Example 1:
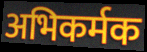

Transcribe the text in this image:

अभिकर्मक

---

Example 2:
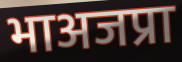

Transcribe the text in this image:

भाअजप्रा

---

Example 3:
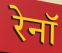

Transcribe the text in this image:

रेनॉ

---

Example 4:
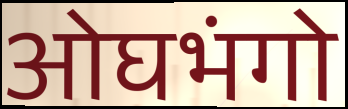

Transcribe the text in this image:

ओघभंगो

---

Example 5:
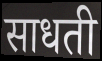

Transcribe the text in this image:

साधती